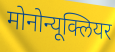
मोनोन्यूक्लियर